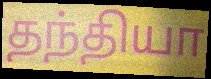
தந்தியா